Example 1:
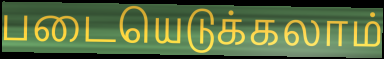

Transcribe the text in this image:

படையெடுக்கலாம்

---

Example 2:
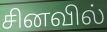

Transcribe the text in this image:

சினவில்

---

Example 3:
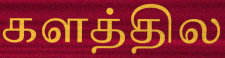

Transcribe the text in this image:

களத்தில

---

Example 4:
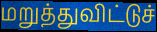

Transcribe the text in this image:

மறுத்துவிட்டுச்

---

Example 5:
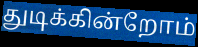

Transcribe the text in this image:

துடிக்கின்றோம்